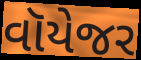
વૉયેજર